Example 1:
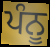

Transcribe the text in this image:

ਪੰਨੂ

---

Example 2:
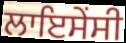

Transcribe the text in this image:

ਲਾਇਸੇਂਸੀ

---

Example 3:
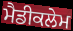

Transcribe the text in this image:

ਮੈਡੀਕਲੇਮ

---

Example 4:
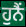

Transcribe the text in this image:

ਹੁਨੈਂ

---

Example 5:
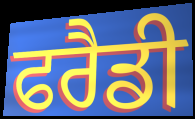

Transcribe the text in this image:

ਫਰੈਡੀ